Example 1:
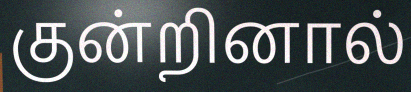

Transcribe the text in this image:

குன்றினால்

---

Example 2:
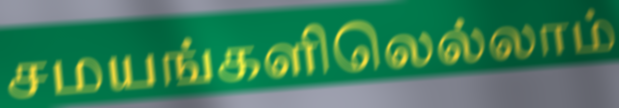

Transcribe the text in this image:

சமயங்களிலெல்லாம்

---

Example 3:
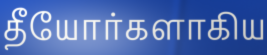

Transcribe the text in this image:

தீயோர்களாகிய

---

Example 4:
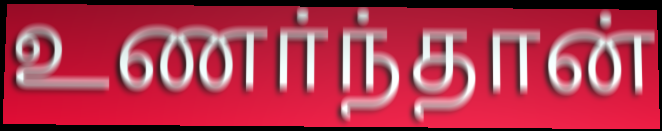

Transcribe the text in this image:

உணர்ந்தான்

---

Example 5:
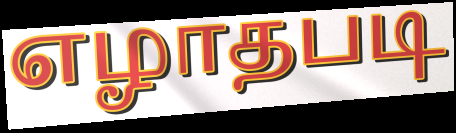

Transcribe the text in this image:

எழாதபடி